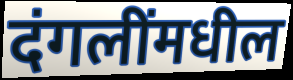
दंगलींमधील